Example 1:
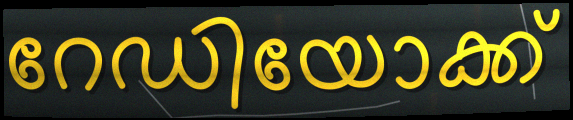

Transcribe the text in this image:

റേഡിയോക്ക്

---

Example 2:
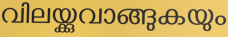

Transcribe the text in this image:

വിലയ്ക്കുവാങ്ങുകയും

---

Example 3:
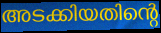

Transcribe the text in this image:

അടക്കിയതിന്റെ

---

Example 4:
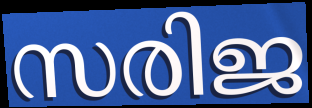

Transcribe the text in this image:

സരിജ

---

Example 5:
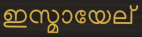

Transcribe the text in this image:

ഇസ്മായേല്